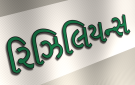
રિઝિલિયન્સ